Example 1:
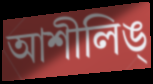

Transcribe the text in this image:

আশীলিঙ্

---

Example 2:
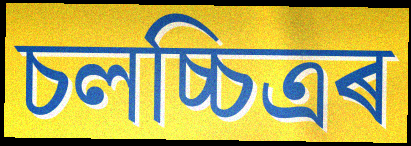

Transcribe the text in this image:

চলচ্চিত্ৰৰ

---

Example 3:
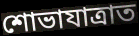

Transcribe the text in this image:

শোভাযাত্ৰাত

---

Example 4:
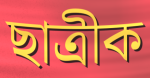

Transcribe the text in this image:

ছাত্ৰীক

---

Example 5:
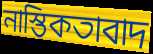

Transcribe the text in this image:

নাস্তিকতাবাদ